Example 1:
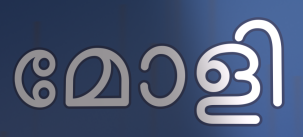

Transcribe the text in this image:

മോളി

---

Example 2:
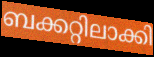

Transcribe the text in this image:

ബക്കറ്റിലാക്കി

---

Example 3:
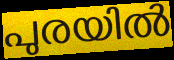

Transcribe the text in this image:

പുരയിൽ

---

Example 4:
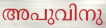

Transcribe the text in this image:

അപുവിനു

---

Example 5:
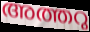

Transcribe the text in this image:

അത്തറു